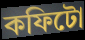
কফিটো